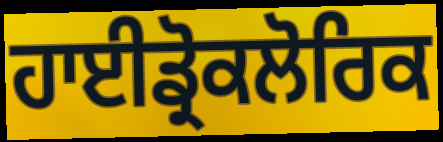
ਹਾਈਡ੍ਰੋਕਲੋਰਿਕ